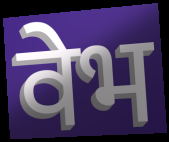
वेभ